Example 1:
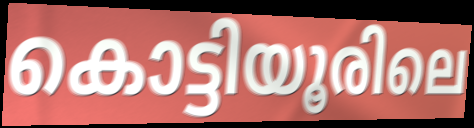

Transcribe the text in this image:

കൊട്ടിയൂരിലെ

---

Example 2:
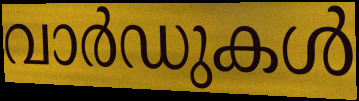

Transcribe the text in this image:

വാർഡുകൾ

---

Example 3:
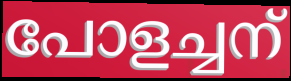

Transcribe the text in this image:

പോളച്ചന്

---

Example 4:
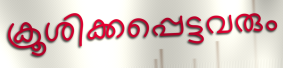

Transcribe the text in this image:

ക്രൂശിക്കപ്പെട്ടവരും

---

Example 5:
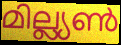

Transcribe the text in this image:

മില്ല്യൺ